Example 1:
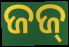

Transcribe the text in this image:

ଜଜ୍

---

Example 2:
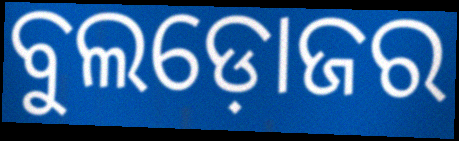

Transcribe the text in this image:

ବୁଲଡ଼ୋଜର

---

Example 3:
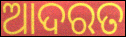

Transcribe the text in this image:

ଆଦରତ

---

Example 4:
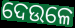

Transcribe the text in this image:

ଦେଉଳେ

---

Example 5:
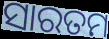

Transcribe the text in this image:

ସାରତମ